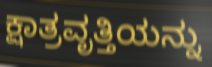
ಕ್ಷಾತ್ರವೃತ್ತಿಯನ್ನು